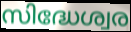
സിദ്ധേശ്വര